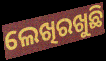
ଲେଖିରଖୁଛି